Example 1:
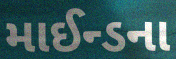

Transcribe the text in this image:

માઈન્ડના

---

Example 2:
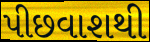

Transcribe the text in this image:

પીછવાશથી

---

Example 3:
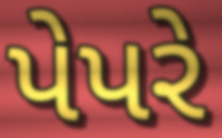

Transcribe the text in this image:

પેપરે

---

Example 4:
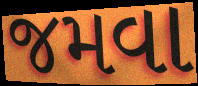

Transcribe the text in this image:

જમવા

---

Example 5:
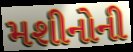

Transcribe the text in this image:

મશીનોની